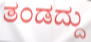
ತಂಡದ್ದು